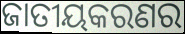
ଜାତୀୟକରଣର